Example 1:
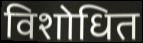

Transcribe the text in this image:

विशोधित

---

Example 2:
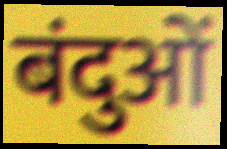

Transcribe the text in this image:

बंदुओं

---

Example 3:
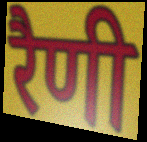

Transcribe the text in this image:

रैणी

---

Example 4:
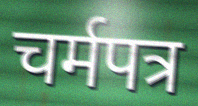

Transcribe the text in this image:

चर्मपत्र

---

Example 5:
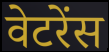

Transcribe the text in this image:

वेटरेंस